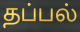
தப்பல்